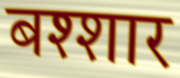
बश्शार